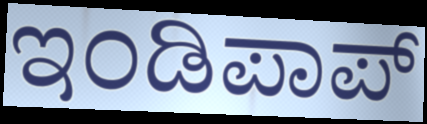
ಇಂಡಿಪಾಪ್